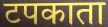
टपकाता